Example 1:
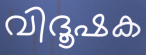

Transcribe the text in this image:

വിദൂഷക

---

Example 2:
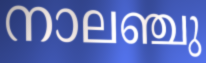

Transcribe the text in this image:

നാലഞ്ചു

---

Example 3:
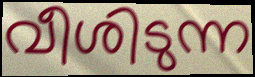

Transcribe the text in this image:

വീശിടുന്ന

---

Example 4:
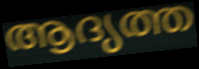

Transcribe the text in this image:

ആദ്യത്ത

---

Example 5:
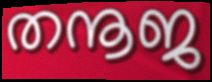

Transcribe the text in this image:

തനൂജ